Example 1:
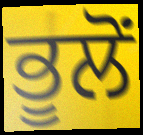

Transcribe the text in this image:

ਭੂਲੋਂ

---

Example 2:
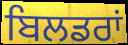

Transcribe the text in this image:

ਬਿਲਡਰਾਂ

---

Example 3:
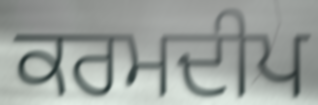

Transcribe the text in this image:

ਕਰਮਦੀਪ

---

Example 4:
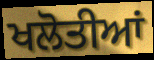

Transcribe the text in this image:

ਖਲੋਤੀਆਂ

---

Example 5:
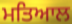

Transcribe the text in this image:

ਮਤਿਆਲ